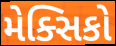
મેક્સિકો